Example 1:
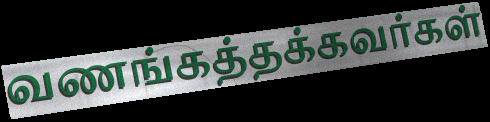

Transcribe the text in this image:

வணங்கத்தக்கவர்கள்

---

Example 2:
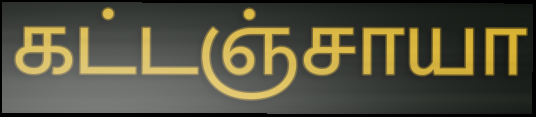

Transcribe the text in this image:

கட்டஞ்சாயா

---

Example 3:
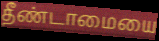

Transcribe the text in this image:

தீண்டாமையை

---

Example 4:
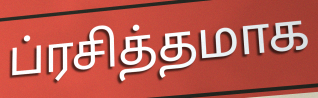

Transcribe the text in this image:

ப்ரசித்தமாக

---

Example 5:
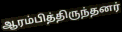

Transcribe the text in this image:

ஆரம்பித்திருந்தனர்